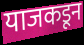
याजकडून